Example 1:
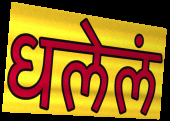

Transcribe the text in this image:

धलेलं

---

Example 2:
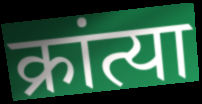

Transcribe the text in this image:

क्रांत्या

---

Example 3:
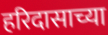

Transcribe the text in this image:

हरिदासाच्या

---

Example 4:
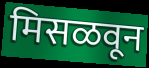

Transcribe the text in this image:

मिसळवून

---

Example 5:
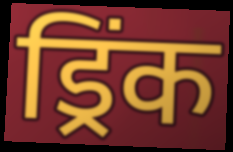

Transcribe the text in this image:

ड्रिंक